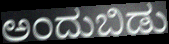
ಅಂದುಬಿಡು